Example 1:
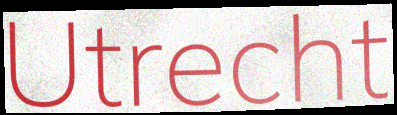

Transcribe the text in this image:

Utrecht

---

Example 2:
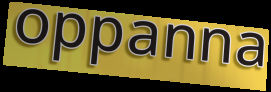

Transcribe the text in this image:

oppanna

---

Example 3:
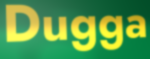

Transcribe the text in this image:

Dugga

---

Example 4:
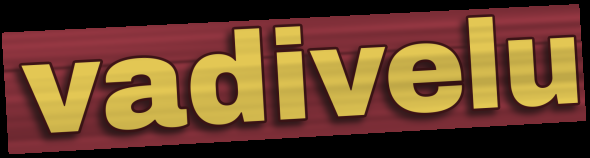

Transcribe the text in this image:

vadivelu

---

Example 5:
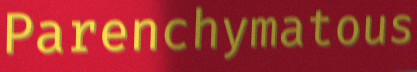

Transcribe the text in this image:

Parenchymatous